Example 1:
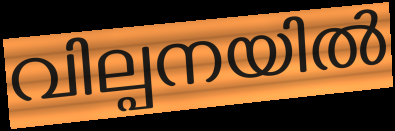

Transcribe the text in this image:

വില്പനയിൽ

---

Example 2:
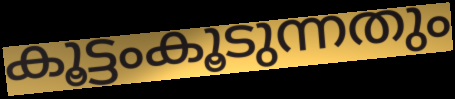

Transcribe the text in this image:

കൂട്ടംകൂടുന്നതും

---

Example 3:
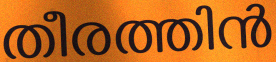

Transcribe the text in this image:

തീരത്തിൻ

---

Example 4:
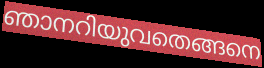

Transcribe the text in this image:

ഞാനറിയുവതെങ്ങനെ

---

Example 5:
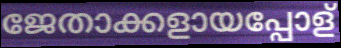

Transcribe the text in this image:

ജേതാക്കളായപ്പോള്